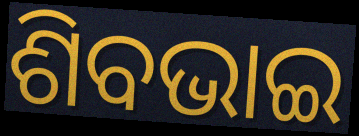
ଶିବଭାଇ